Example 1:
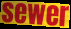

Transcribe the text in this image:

sewer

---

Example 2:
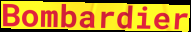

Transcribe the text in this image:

Bombardier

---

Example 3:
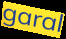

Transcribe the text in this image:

garal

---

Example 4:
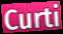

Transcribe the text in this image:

Curti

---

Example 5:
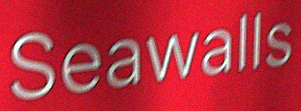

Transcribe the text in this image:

Seawalls